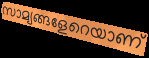
സാമ്യങ്ങളേറെയാണ്